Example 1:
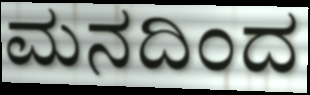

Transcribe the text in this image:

ಮನದಿಂದ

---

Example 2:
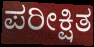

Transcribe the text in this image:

ಪರೀಕ್ಷಿತ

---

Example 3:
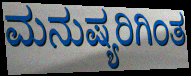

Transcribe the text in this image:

ಮನುಷ್ಯರಿಗಿಂತ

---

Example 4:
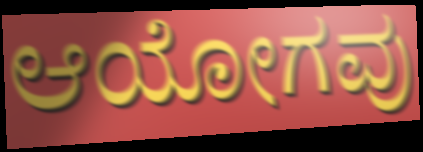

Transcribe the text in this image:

ಆಯೋಗವು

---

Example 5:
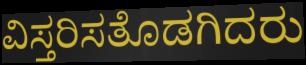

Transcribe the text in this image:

ವಿಸ್ತರಿಸತೊಡಗಿದರು